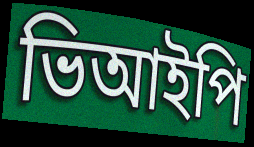
ভিআইপি